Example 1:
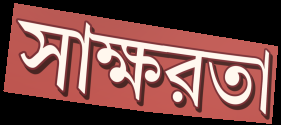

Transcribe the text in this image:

সাক্ষরতা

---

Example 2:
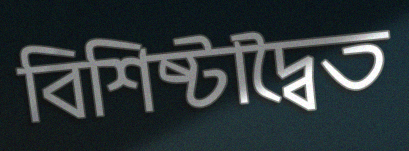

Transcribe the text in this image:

বিশিষ্টাদ্বৈত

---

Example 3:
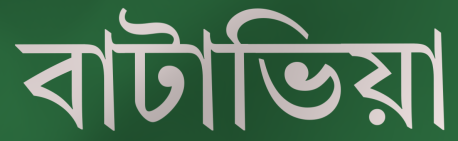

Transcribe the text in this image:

বাটাভিয়া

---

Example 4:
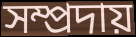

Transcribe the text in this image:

সম্প্রদায়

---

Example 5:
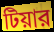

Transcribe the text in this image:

টিয়ার